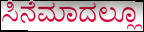
ಸಿನೆಮಾದಲ್ಲೂ